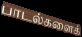
பாடல்களைக்